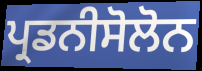
ਪ੍ਰਡਨੀਸੋਲੋਨ